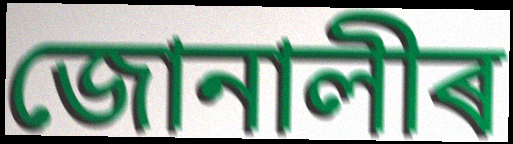
জোনালীৰ